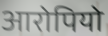
आरोपियो